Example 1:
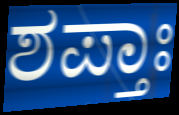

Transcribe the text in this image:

ಶಪ್ತಾಃ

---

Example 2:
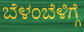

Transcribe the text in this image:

ಬೆಳಂಬೆಳಿಗ್ಗೆ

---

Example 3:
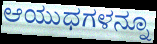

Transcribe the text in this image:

ಆಯುಧಗಳನ್ನೂ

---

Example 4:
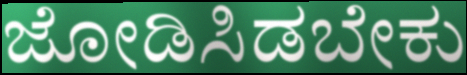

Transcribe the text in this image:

ಜೋಡಿಸಿಡಬೇಕು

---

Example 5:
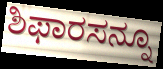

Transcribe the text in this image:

ಶಿಫಾರಸನ್ನೂ